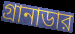
গ্রানাডার